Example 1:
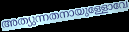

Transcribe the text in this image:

അത്യുന്നതനായുള്ളോവേ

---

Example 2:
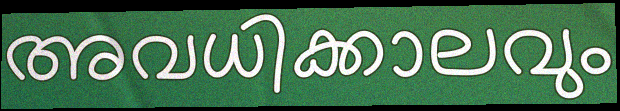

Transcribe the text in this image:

അവധിക്കാലവും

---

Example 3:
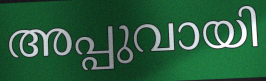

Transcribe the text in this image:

അപ്പുവായി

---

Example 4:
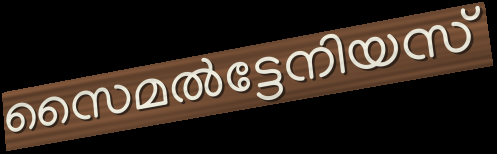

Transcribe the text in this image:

സൈമൽട്ടേനിയസ്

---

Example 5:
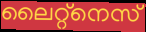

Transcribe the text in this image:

ലൈറ്റ്നെസ്